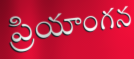
ప్రియాంగన